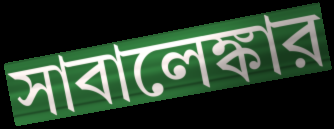
সাবালেঙ্কার